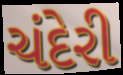
ચંદેરી